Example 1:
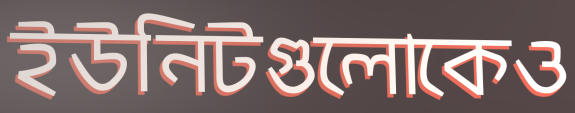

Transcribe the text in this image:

ইউনিটগুলোকেও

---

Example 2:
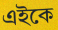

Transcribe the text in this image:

এইকে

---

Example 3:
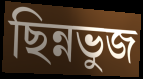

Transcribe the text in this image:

ছিন্নভুজ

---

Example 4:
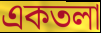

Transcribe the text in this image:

একতলা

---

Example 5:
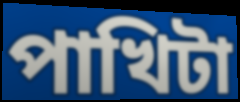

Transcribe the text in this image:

পাখিটা